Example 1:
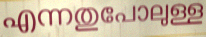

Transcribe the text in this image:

എന്നതുപോലുള്ള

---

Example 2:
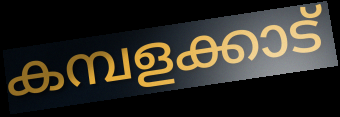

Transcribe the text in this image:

കമ്പളക്കാട്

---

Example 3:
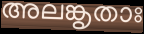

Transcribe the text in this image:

അലങ്കൃതാഃ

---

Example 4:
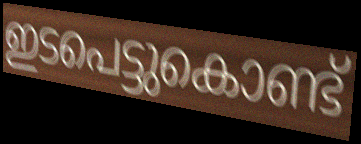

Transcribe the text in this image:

ഇടപെട്ടുകൊണ്ട്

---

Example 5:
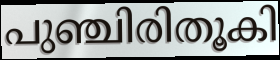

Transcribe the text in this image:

പുഞ്ചിരിതൂകി